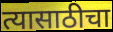
त्यासाठीचा